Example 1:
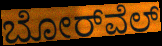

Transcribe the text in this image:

ಬೋರ್‌ವೆಲ್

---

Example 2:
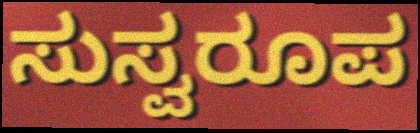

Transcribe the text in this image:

ಸುಸ್ವರೂಪ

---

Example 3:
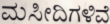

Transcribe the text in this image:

ಮಸೀದಿಗಳಿವೆ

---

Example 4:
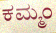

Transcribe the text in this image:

ಕಮ್ಮಂ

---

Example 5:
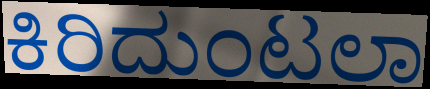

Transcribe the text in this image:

ಕಿರಿದುಂಟಲಾ